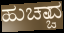
ಹುಚ್ಚಾದ